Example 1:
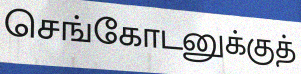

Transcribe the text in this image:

செங்கோடனுக்குத்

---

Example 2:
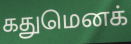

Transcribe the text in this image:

கதுமெனக்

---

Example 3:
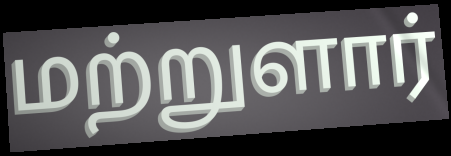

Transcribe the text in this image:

மற்றுளார்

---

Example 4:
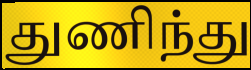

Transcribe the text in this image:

துணிந்து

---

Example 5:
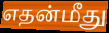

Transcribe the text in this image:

எதன்மீது